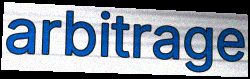
arbitrage